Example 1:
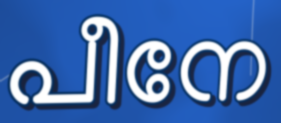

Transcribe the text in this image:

പീനേ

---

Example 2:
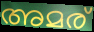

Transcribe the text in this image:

അമര്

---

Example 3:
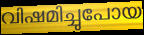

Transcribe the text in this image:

വിഷമിച്ചുപോയ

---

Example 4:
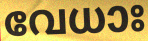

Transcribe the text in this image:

വേധാഃ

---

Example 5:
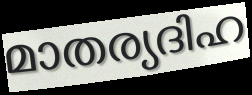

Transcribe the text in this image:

മാതര്യദിഹ